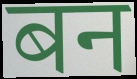
बन